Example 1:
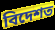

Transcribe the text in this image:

বিদেশত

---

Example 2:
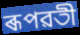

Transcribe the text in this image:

ৰূপৱতী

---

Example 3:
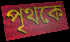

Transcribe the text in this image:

পৃথকে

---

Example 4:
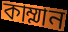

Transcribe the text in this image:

কাম্মান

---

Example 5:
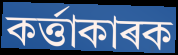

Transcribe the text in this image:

কৰ্ত্তাকাৰক